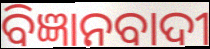
ବିଜ୍ଞାନବାଦୀ